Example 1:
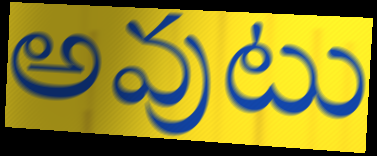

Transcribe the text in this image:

అవుటు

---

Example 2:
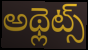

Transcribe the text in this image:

అథ్లెట్స్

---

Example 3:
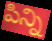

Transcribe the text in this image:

పిన్ని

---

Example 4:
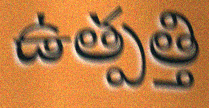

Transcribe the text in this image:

ఉత్పత్తి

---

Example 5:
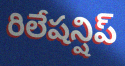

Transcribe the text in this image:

రిలేషన్షిప్